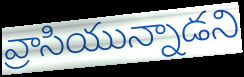
వ్రాసియున్నాడని